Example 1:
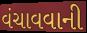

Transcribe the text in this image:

વંચાવવાની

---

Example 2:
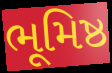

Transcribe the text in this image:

ભૂમિષ્ઠ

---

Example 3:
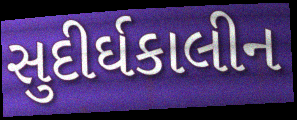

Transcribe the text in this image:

સુદીર્ઘકાલીન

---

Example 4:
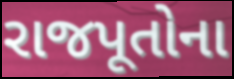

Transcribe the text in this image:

રાજપૂતોના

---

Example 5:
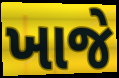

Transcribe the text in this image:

ખાજે